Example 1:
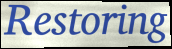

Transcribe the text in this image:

Restoring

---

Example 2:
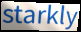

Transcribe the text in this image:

starkly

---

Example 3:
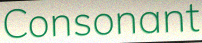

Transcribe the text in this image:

Consonant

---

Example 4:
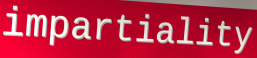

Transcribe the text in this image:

impartiality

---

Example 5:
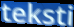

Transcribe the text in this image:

teksti